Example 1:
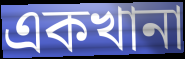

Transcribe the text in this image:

একখানা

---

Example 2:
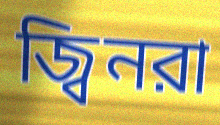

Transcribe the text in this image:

জ্বিনরা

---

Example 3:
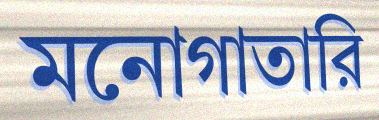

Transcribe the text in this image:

মনোগাতারি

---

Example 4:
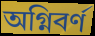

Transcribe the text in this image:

অগ্নিবর্ণ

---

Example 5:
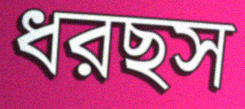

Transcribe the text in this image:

ধরছস